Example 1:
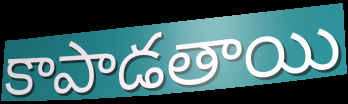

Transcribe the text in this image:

కాపాడతాయి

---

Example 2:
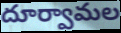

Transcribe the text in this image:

దూర్వామల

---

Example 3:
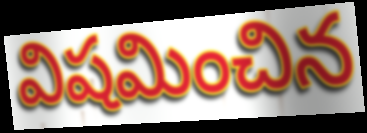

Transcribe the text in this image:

విషమించిన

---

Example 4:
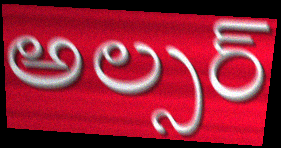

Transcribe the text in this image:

అల్సర్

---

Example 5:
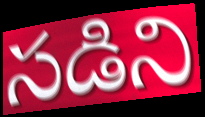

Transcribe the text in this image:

సడిని